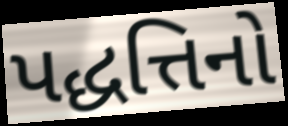
પદ્ધત્તિનો